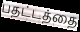
பதட்டத்தை